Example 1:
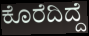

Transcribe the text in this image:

ಕೊರೆದಿದ್ದೆ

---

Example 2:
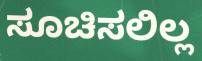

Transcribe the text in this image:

ಸೂಚಿಸಲಿಲ್ಲ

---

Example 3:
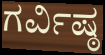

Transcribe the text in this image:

ಗರ್ವಿಷ್ಠ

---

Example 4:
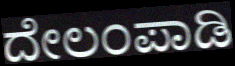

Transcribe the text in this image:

ದೇಲಂಪಾಡಿ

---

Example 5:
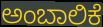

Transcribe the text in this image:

ಅಂಬಾಲಿಕೆ